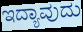
ಇದ್ಯಾವುದು